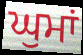
ਘੁਮਾਂ